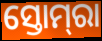
ସ୍ତୋମ୍‌ରା